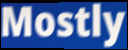
Mostly